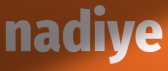
nadiye